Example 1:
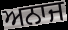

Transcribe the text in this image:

ਅਨਾਜ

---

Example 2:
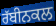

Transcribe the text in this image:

ਰੱਬੀਨਕਲ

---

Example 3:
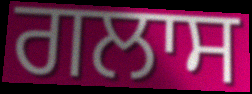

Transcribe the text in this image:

ਗਲਾਸ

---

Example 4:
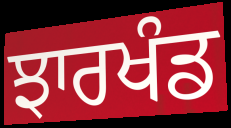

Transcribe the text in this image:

ਝਾਰਖੰਡ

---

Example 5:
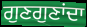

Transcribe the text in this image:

ਗੁਣਗੁਣਾਂਦਾ